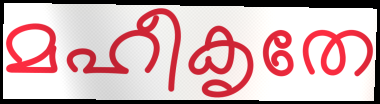
മഹീകൃതേ